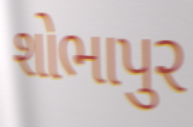
શોભાપુર